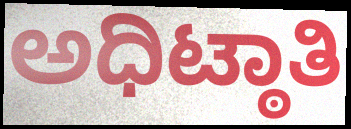
ಅಧಿಟ್ಠಾತಿ